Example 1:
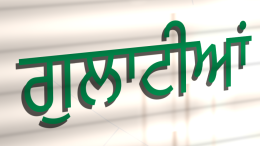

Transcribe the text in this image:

ਗੁਲਾਟੀਆਂ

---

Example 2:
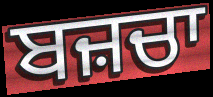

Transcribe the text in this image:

ਬਜ਼ਚਾ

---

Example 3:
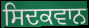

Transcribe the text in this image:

ਸਿਦਕਵਾਨ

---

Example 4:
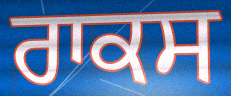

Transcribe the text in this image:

ਰਾਕਸ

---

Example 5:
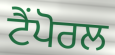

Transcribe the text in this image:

ਟੈਂਪੋਰਲ